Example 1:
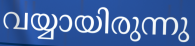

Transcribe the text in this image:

വയ്യായിരുന്നു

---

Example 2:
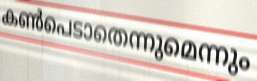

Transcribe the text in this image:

കൺപെടാതെന്നുമെന്നും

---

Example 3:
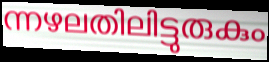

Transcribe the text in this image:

ന്നഴലതിലിട്ടുരുകും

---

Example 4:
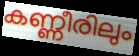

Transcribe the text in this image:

കണ്ണീരിലും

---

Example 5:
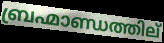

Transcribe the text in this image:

ബ്രഹ്മാണ്ഡത്തില്